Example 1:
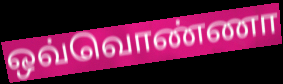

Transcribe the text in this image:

ஒவ்வொண்ணா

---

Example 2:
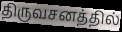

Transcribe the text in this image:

திருவசனத்தில்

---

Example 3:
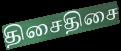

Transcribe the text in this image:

திசைதிசை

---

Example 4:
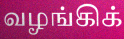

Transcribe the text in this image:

வழங்கிக்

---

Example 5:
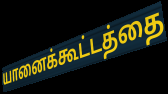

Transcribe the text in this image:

யானைக்கூட்டத்தை